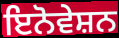
ਇਨੋਵੇਸ਼ਨ